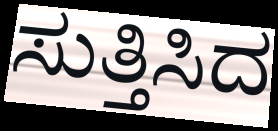
ಸುತ್ತಿಸಿದ